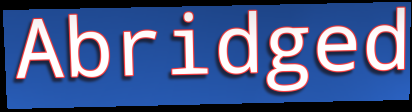
Abridged